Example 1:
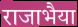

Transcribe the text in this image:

राजाभैया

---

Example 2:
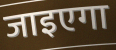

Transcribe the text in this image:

जाइएगा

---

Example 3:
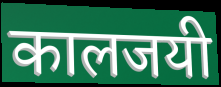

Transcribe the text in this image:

कालजयी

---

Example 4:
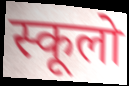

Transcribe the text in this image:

स्कूलो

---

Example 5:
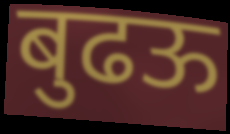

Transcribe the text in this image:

बुढऊ